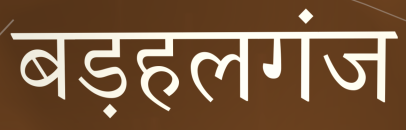
बड़हलगंज